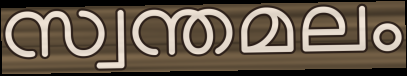
സ്വന്തമലം